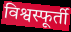
विश्वस्फूर्ती